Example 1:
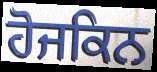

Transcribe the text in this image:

ਹੋਜਕਿਨ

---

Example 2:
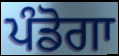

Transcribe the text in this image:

ਪੰਡੋਗਾ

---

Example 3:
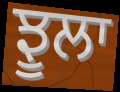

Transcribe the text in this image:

ਝੂਲਾ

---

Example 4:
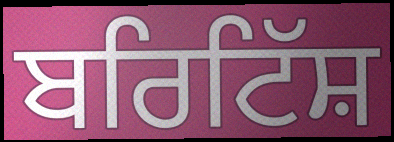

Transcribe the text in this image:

ਬਰਿਟਿੱਸ਼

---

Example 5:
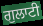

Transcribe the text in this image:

ਗੁਲਾਟੀ